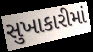
સુખાકારીમાં